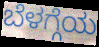
ಬೆಳಗ್ಗೆಯ